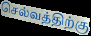
செல்வத்திற்கு